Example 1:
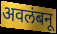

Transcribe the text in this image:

अवलंबनू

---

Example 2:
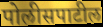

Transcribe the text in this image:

पोलीसपाटील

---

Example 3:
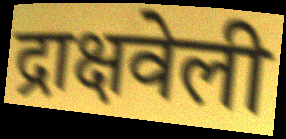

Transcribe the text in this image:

द्राक्षवेली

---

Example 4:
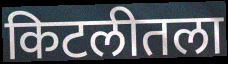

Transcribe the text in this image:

किटलीतला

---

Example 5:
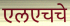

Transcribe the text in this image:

एलएचचे